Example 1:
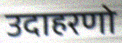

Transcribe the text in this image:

उदाहरणो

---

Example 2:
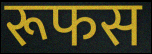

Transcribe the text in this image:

रूफस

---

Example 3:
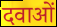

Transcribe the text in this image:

दवाओं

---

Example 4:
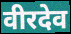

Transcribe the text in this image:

वीरदेव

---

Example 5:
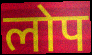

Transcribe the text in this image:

लोप